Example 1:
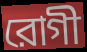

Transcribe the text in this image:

রোগী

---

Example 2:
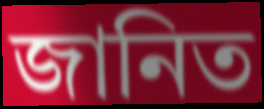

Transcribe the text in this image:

জানিত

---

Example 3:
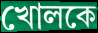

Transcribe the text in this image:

খোলকে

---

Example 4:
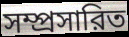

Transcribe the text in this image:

সম্প্রসারিত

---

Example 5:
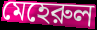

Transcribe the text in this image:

মেহেরুল